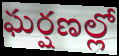
ఘర్షణల్లో